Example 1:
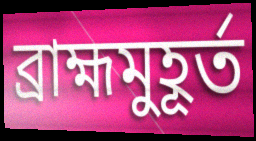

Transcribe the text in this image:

ব্রাহ্মমুহূর্ত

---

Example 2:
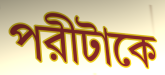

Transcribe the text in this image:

পরীটাকে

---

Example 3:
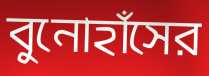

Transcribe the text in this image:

বুনোহাঁসের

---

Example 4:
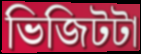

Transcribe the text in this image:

ভিজিটটা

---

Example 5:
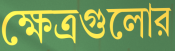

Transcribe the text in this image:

ক্ষেত্রগুলোর